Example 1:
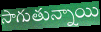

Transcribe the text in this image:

సాగుతున్నాయి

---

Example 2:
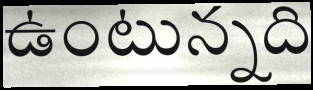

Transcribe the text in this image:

ఉంటున్నది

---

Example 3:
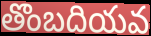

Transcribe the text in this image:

తొంబదియవ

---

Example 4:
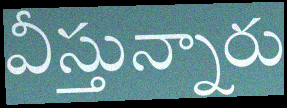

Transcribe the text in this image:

వీస్తున్నారు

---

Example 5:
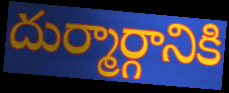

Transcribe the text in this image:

దుర్మార్గానికి